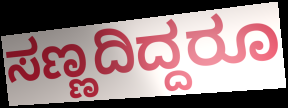
ಸಣ್ಣದಿದ್ದರೂ